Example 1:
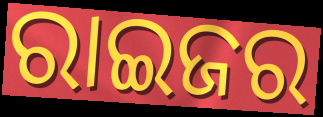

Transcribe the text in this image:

ରାଇଜର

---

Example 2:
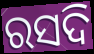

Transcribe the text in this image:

ରସଦି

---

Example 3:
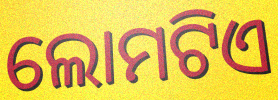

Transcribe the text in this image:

ଲୋମଟିଏ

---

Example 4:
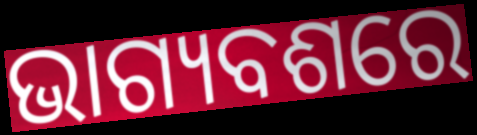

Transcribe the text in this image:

ଭାଗ୍ୟବଶରେ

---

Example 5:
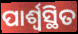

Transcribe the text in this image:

ପାର୍ଶ୍ୱସ୍ଥିତ